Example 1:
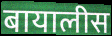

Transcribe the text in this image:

बायालीस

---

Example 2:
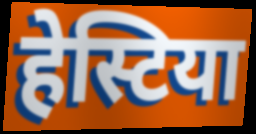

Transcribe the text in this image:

हेस्टिया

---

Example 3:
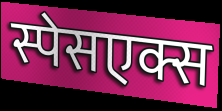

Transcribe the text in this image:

स्पेसएक्स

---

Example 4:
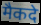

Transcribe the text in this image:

मैकदे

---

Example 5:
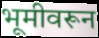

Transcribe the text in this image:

भूमीवरून